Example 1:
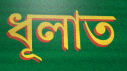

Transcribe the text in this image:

ধূলাত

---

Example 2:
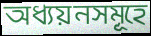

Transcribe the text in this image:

অধ্যয়নসমূহে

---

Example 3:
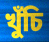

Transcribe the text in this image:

খুঁচি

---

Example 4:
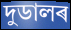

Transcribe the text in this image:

দুডালৰ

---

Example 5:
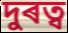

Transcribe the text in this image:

দুৰত্ব